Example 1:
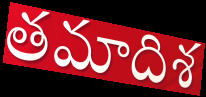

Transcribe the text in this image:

తమాదిశ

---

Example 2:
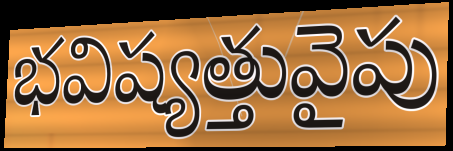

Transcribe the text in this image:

భవిష్యత్తువైపు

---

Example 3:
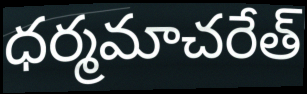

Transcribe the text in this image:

ధర్మమాచరేత్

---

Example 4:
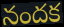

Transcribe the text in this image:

నందక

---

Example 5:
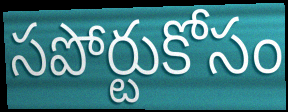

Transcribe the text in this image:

సపోర్టుకోసం